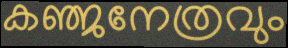
കഞ്ജനേത്രവും